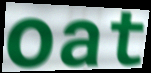
oat